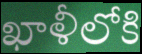
ఖాళీలోకి